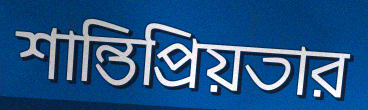
শান্তিপ্রিয়তার